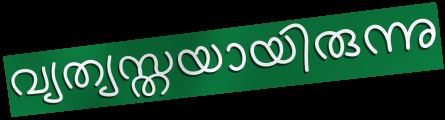
വ്യത്യസ്തയായിരുന്നു